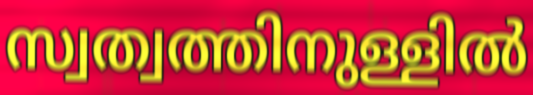
സ്വത്വത്തിനുള്ളിൽ